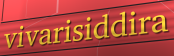
vivarisiddira